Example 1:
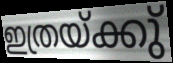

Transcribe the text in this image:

ഇത്രയ്ക്കു്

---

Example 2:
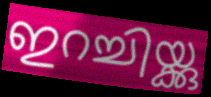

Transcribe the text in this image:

ഇറച്ചിയ്ക്കു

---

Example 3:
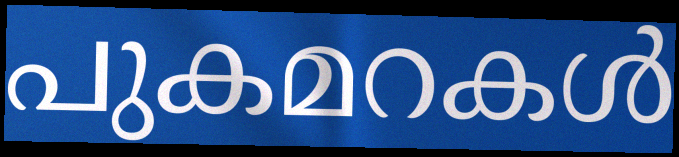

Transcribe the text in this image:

പുകമറകൾ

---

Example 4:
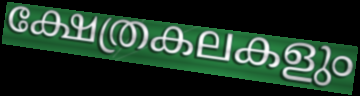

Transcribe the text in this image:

ക്ഷേത്രകലകളും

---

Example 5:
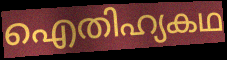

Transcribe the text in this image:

ഐതിഹ്യകഥ